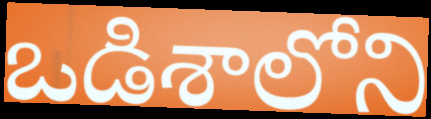
ఒడిశాలోని